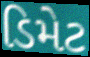
ડિમેટ